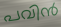
പവിൻ